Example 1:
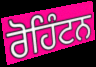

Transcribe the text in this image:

ਰੋਹਿੰਟਨ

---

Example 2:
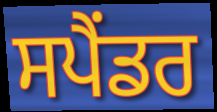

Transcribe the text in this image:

ਸਪੈਂਡਰ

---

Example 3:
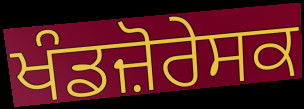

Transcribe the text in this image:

ਖੰਡਜ਼ੋਰੇਸਕ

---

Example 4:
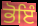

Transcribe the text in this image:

ਭੋਇੰ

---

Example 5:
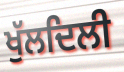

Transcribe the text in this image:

ਖੁੱਲਦਿਲੀ